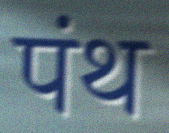
पंथ